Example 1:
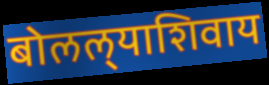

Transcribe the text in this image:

बोलल्याशिवाय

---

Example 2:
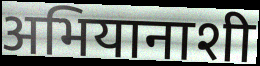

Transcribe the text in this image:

अभियानाशी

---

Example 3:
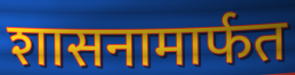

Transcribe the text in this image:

शासनामार्फत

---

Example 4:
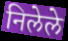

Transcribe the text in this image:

निलेले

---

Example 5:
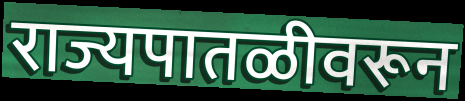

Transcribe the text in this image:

राज्यपातळीवरून